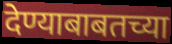
देण्याबाबतच्या